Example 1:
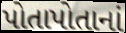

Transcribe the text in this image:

પોતાપોતાનાં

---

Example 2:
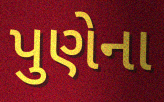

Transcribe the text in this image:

પુણેના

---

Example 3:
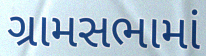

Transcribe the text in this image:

ગ્રામસભામાં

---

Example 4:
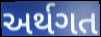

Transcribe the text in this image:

અર્થગત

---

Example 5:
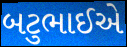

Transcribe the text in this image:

બટુભાઈએ